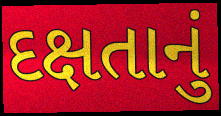
દક્ષતાનું